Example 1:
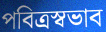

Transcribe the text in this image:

পবিত্রস্বভাব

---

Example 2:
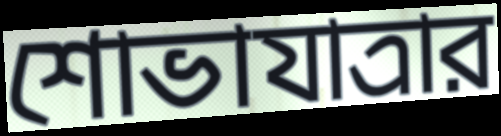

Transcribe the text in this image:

শোভাযাত্রার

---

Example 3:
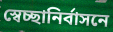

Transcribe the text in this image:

স্বেচ্ছানির্বাসনে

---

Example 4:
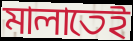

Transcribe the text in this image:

মালাতেই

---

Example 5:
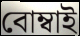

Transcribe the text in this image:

বোম্বাই